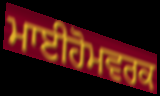
ਮਾਈਹੋਮਵਰਕ